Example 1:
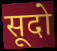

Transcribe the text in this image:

सूदो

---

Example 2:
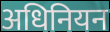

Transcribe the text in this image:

अधिनियन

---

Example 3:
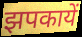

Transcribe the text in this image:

झपकायें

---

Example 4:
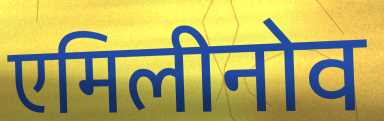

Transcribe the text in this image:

एमिलीनोव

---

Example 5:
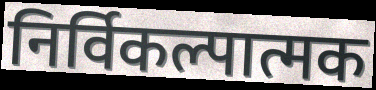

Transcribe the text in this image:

निर्विकल्पात्मक